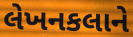
લેખનકલાને